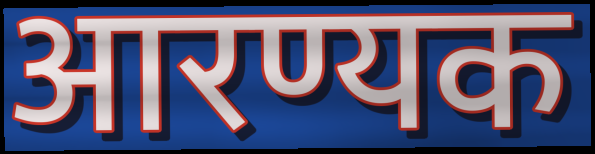
आरण्यक